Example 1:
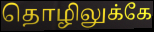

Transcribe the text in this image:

தொழிலுக்கே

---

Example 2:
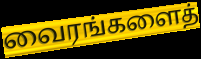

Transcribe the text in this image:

வைரங்களைத்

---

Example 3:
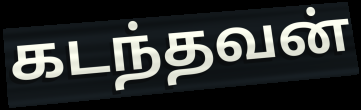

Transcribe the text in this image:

கடந்தவன்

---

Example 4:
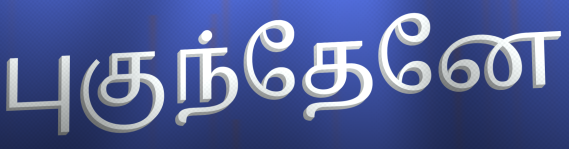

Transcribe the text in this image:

புகுந்தேனே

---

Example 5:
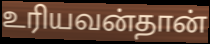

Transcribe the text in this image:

உரியவன்தான்